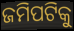
ଜମିପଟିକୁ